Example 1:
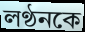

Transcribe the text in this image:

লণ্ঠনকে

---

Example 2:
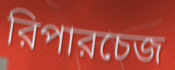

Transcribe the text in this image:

রিপারচেজ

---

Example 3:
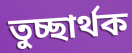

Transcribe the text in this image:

তুচ্ছার্থক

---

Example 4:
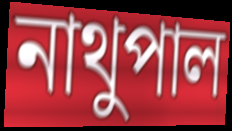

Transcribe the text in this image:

নাথুপাল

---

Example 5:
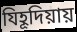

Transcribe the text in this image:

যিহূদিয়ায়